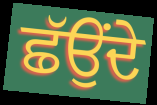
ਛੱਉਂਦੇ